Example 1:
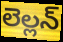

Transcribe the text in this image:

లెల్లన్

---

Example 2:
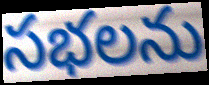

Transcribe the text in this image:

సభలను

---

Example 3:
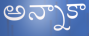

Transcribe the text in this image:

అన్నాకా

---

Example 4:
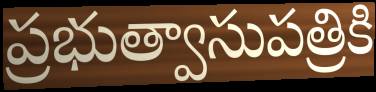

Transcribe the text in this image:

ప్రభుత్వాసుపత్రికి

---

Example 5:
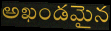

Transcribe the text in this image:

అఖండమైన